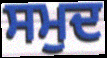
ਸਮੁਦ